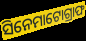
ସିନେମାଟୋଗ୍ରାଫ